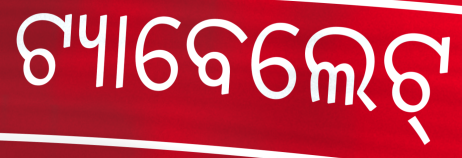
ଟ୍ୟାବେଲେଟ୍